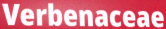
Verbenaceae